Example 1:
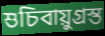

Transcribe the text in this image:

শুচিবায়ুগ্ৰস্ত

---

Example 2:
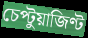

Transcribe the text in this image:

চেপ্টুয়াজিণ্ট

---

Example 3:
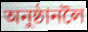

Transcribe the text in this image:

অনুষ্ঠানলৈ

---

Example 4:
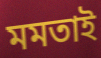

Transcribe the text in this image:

মমতাই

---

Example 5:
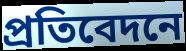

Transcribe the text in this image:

প্ৰতিবেদনে